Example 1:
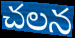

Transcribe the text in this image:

చలన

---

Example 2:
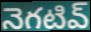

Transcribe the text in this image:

నెగటివ్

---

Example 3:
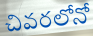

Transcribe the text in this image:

చివరలోనో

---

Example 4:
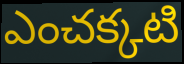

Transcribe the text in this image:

ఎంచక్కటి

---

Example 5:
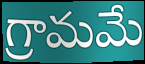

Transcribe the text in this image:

గ్రామమే